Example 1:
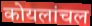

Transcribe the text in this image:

कोयलांचल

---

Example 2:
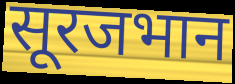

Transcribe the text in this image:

सूरजभान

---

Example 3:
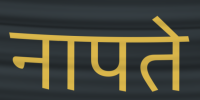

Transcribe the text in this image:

नापते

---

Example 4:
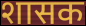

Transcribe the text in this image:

शासक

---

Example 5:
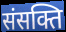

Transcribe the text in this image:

संसक्ति